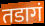
तडागं